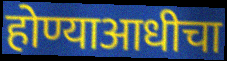
होण्याआधीचा